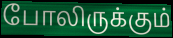
போலிருக்கும்